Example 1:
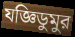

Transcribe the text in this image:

যজ্ঞিডুমুর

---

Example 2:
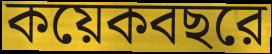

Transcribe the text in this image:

কয়েকবছরে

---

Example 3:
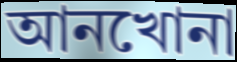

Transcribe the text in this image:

আনখোনা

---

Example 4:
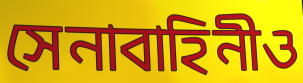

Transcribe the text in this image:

সেনাবাহিনীও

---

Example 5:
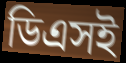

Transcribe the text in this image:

ডিএসই